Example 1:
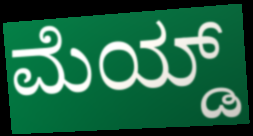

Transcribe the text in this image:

ಮೆಯ್ಡ್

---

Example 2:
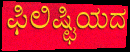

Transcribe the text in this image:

ಫಿಲಿಷ್ಟಿಯದ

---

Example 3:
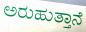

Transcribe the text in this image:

ಅರುಹುತ್ತಾನೆ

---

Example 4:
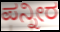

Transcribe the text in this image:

ಪನ್ನೀರ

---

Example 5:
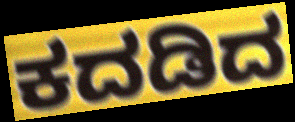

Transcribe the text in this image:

ಕದಡಿದ